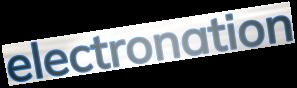
electronation